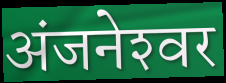
अंजनेश्वर